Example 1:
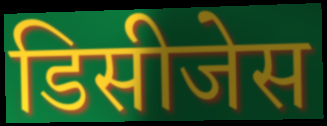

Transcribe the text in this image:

डिसीजेस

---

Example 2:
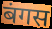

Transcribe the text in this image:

बंगस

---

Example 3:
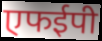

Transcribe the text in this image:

एफईपी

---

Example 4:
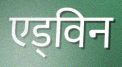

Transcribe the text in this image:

एड्विन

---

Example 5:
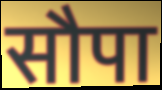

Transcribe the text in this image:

सौपा